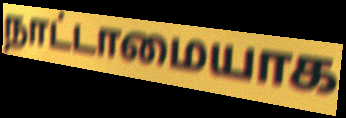
நாட்டாமையாக